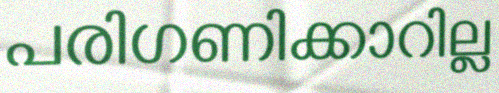
പരിഗണിക്കാറില്ല